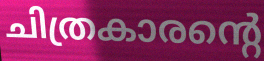
ചിത്രകാരന്റെ